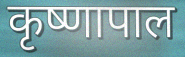
कृष्णापाल